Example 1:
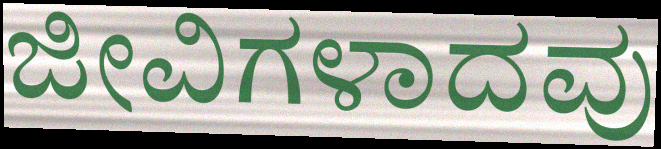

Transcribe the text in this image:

ಜೀವಿಗಳಾದವು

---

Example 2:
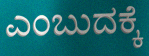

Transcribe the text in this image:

ಎಂಬುದಕ್ಕೆ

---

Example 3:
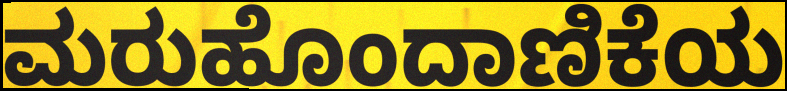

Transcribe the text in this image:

ಮರುಹೊಂದಾಣಿಕೆಯ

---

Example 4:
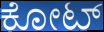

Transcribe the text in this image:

ಕೋಟ್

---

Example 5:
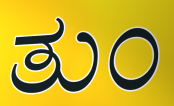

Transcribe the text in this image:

ತುಂ